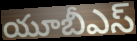
యూబీఎస్